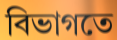
বিভাগতে